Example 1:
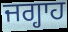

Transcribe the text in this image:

ਜਗ੍ਹਾਹ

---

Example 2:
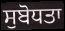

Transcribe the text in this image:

ਸੁਬੋਧਤਾ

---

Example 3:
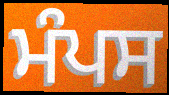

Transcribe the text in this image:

ਮੰਪਸ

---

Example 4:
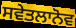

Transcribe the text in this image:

ਸਵੇਤਲਾਨੋਵ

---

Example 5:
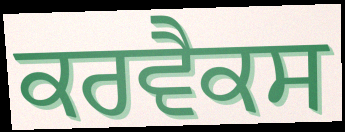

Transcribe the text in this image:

ਕਰਵੈਕਸ